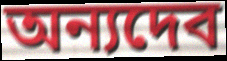
অন্যদেব